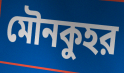
মৌনকুহর